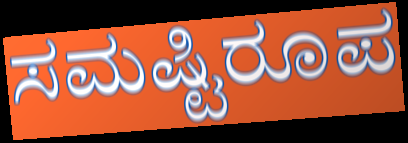
ಸಮಷ್ಟಿರೂಪ